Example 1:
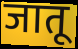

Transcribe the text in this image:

जातू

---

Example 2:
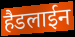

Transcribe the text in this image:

हैडलाईन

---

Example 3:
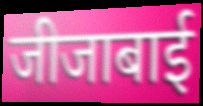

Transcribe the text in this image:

जीजाबाई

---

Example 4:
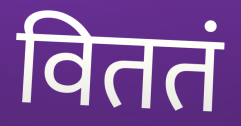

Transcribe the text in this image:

विततं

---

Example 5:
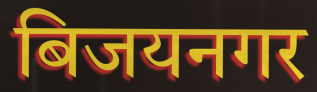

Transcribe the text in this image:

बिजयनगर